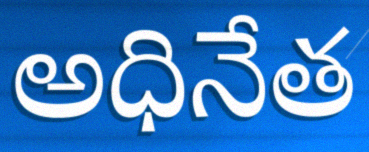
అధినేత